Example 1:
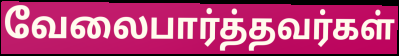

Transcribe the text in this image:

வேலைபார்த்தவர்கள்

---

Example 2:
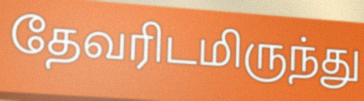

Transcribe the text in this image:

தேவரிடமிருந்து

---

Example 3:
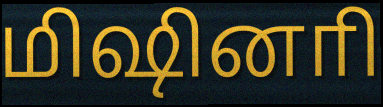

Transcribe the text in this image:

மிஷினரி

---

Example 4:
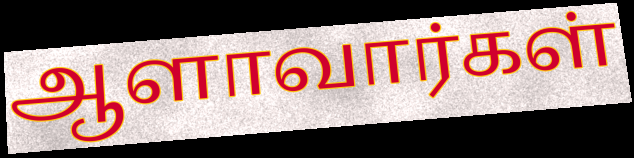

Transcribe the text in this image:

ஆளாவார்கள்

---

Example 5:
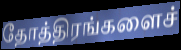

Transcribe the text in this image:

தோத்திரங்களைச்